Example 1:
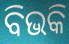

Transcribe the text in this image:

ବିଭକି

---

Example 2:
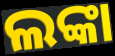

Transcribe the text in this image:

ଲଙ୍କା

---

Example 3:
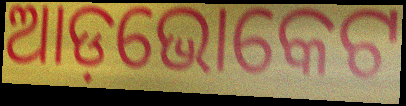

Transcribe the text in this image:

ଆଡ଼ଭୋକେଟ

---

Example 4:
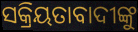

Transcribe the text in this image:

ସକ୍ରିୟତାବାଦୀଙ୍କୁ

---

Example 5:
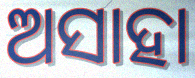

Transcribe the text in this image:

ଅସାହା